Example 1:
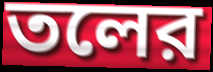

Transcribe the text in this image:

তলের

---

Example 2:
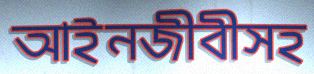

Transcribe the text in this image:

আইনজীবীসহ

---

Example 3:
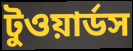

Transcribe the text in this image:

টুওয়ার্ডস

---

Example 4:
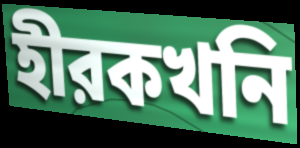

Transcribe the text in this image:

হীরকখনি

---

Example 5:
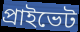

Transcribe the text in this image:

প্রাইভেট